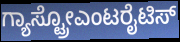
ಗ್ಯಾಸ್ಟ್ರೋಎಂಟರೈಟಿಸ್